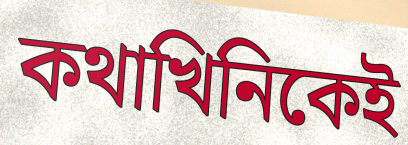
কথাখিনিকেই